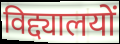
विद्द्यालयों